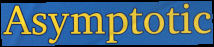
Asymptotic